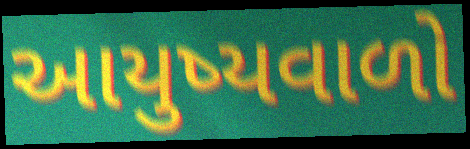
આયુષ્યવાળો